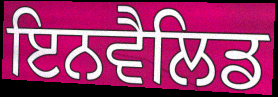
ਇਨਵੈਲਿਡ